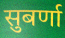
सुबर्णा